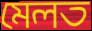
মেলত